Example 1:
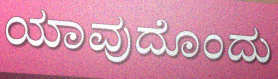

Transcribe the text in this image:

ಯಾವುದೊಂದು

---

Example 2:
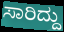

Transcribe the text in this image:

ಸಾರಿದ್ದು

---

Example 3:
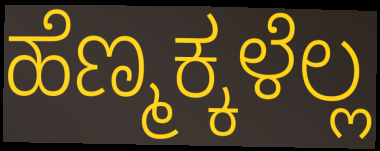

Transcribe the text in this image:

ಹೆಣ್ಮಕ್ಕಳೆಲ್ಲ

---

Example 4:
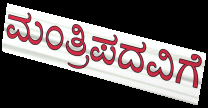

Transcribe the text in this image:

ಮಂತ್ರಿಪದವಿಗೆ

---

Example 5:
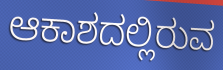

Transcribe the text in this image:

ಆಕಾಶದಲ್ಲಿರುವ